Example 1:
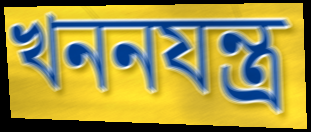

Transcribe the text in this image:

খননযন্ত্র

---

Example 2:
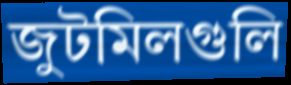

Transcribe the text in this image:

জুটমিলগুলি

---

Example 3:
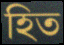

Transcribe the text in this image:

হিত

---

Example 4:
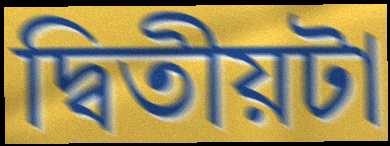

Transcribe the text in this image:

দ্বিতীয়টা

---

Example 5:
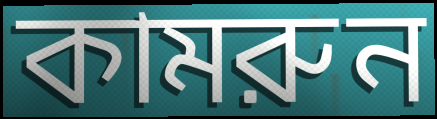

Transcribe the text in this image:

কামরুন